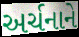
અર્ચનાને